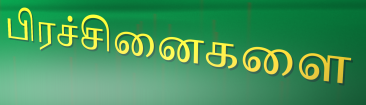
பிரச்சினைகளை